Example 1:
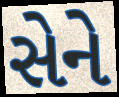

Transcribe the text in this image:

સેને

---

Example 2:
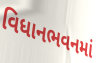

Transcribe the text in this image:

વિધાનભવનમાં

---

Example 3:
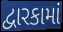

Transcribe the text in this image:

દ્વારકામાં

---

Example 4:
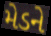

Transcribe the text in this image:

મેડને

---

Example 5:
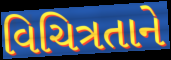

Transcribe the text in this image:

વિચિત્રતાને